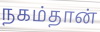
நகம்தான்